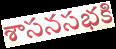
శాసనసభకి